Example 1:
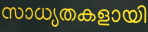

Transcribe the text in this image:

സാധ്യതകളായി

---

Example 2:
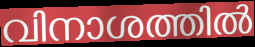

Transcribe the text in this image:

വിനാശത്തിൽ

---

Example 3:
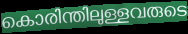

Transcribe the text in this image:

കൊരിന്തിലുള്ളവരുടെ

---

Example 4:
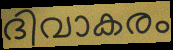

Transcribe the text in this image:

ദിവാകരം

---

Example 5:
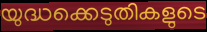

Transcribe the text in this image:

യുദ്ധക്കെടുതികളുടെ